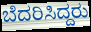
ಬೆದರಿಸಿದ್ದರು